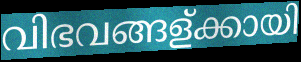
വിഭവങ്ങള്ക്കായി